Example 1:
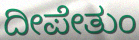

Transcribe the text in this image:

ದೀಪೇತುಂ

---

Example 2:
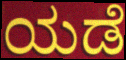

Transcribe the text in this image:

ಯಡೆ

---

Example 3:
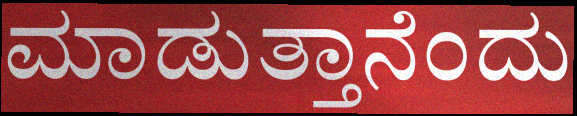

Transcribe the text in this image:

ಮಾಡುತ್ತಾನೆಂದು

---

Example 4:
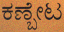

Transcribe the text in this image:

ಕಣ್ಬೇಟ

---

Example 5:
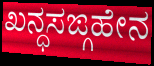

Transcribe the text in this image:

ಖನ್ಧಸಙ್ಗಹೇನ